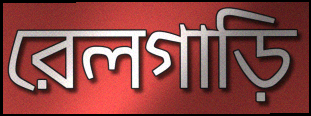
রেলগাড়ি